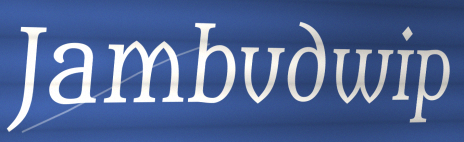
Jambudwip